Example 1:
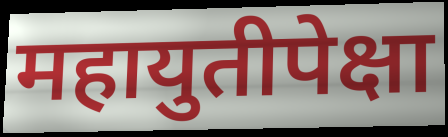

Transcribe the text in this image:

महायुतीपेक्षा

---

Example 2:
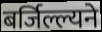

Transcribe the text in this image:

बर्जिल्ल्यने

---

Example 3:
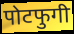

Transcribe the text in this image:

पोटफुगी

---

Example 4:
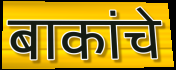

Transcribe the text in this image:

बाकांचे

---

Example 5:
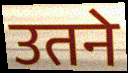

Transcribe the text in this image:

उतने